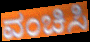
ವಂಚಿಸಿ